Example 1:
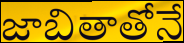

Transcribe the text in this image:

జాబితాతోనే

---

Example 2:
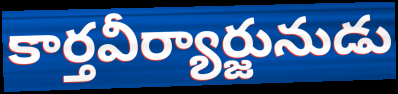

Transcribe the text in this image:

కార్తవీర్యార్జునుడు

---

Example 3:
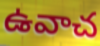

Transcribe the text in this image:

ఉవాచ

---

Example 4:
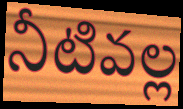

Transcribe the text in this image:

నీటివల్ల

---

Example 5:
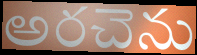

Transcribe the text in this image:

అరచెను